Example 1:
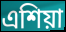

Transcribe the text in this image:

এশিয়া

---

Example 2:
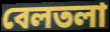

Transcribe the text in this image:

বেলতলা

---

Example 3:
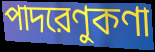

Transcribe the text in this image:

পাদরেণুকণা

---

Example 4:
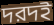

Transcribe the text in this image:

দরদই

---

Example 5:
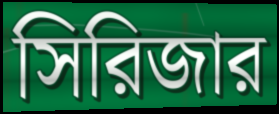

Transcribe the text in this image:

সিরিজার